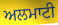
ਅਲਮਾਟੀ